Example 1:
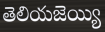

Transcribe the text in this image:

తెలియజెయ్యి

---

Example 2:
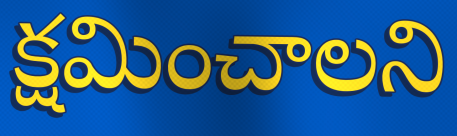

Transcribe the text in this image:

క్షమించాలని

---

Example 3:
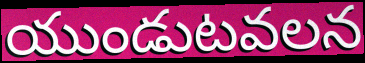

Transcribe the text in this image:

యుండుటవలన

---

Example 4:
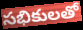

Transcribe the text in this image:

సభికులతో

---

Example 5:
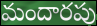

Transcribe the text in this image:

మందారపు